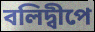
বলিদ্বীপে